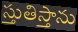
స్తుతిస్తాను